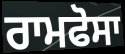
ਰਾਮਫੋਸਾ